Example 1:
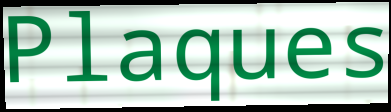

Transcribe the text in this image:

Plaques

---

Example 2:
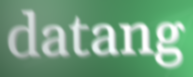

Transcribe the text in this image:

datang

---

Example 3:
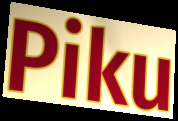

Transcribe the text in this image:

Piku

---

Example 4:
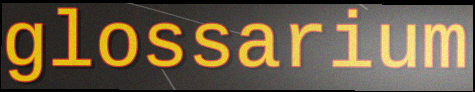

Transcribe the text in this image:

glossarium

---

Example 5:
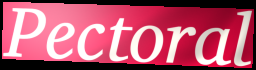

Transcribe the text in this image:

Pectoral